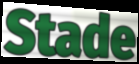
Stade